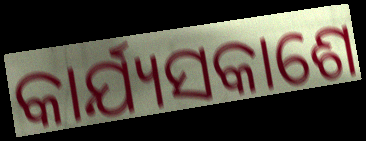
କାର୍ଯ୍ୟସକାଶେ